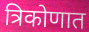
त्रिकोणात